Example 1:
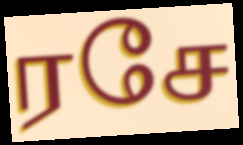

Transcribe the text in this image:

ரசே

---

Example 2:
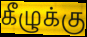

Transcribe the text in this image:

கீழுக்கு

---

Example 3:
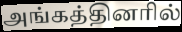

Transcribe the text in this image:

அங்கத்தினரில்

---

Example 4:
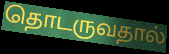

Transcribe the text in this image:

தொடருவதால்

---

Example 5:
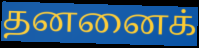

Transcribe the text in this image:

தனனைக்